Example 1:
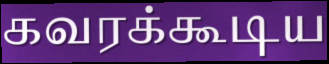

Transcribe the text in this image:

கவரக்கூடிய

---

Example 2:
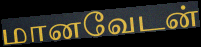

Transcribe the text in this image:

மானவேடன்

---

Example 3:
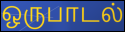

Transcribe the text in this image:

ஒருபாடல்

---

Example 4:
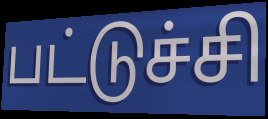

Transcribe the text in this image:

பட்டுச்சி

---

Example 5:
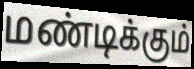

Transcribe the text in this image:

மண்டிக்கும்